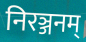
निरञ्जनम्